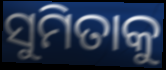
ସୁମିତାକୁ